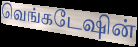
வெங்கடேஷின்